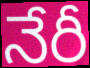
నేరీ